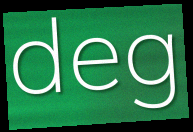
deg